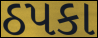
ઠપકા